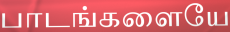
பாடங்களையே